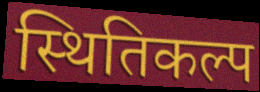
स्थितिकल्प